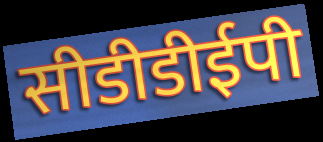
सीडीडीईपी